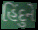
હિંદુને